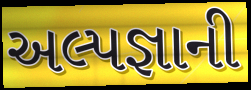
અલ્પજ્ઞાની